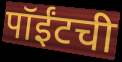
पॉईंटची